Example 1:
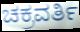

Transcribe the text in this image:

ಚಕ್ರವರ್ತಿ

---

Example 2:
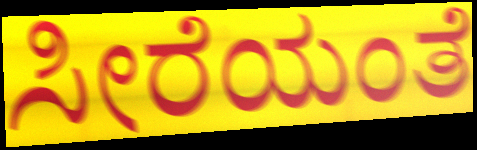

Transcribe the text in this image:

ಸೀರೆಯಂತೆ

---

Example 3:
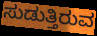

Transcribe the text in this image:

ಸುಡುತ್ತಿರುವ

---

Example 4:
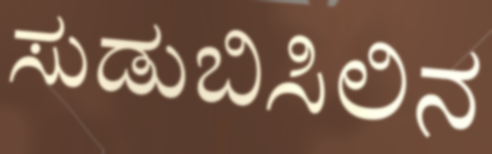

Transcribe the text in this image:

ಸುಡುಬಿಸಿಲಿನ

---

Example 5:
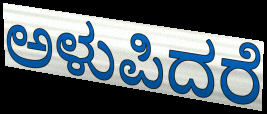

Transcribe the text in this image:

ಅಳುಪಿದರೆ